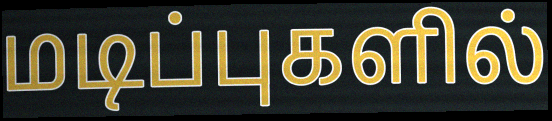
மடிப்புகளில்